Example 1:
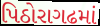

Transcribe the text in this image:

પિઠોરાગઢમાં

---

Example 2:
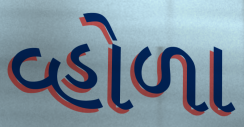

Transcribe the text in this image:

વ્હોળા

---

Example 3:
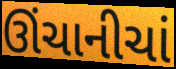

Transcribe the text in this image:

ઊંચાનીચાં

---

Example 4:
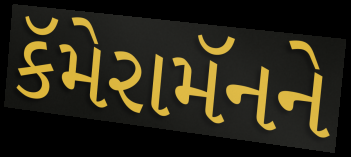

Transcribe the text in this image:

કૅમેરામૅનને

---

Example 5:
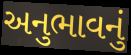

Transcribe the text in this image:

અનુભાવનું